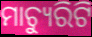
ମାଚ୍ୟୁରିଟି